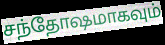
சந்தோஷமாகவும்